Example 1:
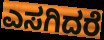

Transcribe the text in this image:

ಎಸಗಿದರೆ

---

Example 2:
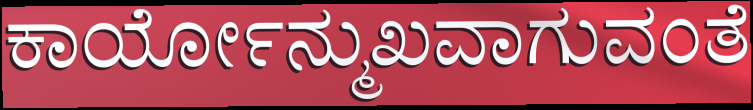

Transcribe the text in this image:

ಕಾರ್ಯೋನ್ಮುಖವಾಗುವಂತೆ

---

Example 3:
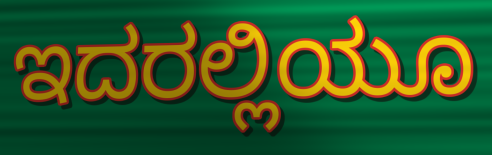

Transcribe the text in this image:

ಇದರಲ್ಲಿಯೂ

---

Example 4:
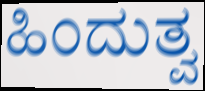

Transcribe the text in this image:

ಹಿಂದುತ್ವ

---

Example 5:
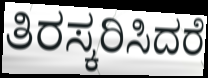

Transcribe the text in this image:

ತಿರಸ್ಕರಿಸಿದರೆ